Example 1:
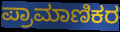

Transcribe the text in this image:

ಪ್ರಾಮಾಣಿಕರ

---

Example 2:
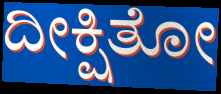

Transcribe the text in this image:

ದೀಕ್ಷಿತೋ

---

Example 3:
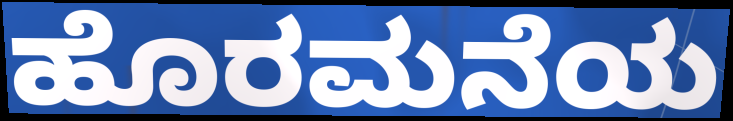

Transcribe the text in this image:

ಹೊರಮನೆಯ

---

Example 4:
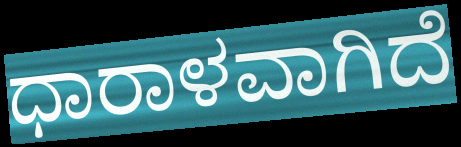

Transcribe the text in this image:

ಧಾರಾಳವಾಗಿದೆ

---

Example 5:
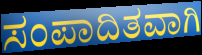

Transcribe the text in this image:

ಸಂಪಾದಿತವಾಗಿ